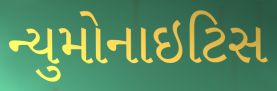
ન્યુમોનાઇટિસ